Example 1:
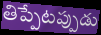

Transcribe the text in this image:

తిప్పేటప్పుడు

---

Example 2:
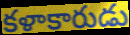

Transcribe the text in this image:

కళాకారుడు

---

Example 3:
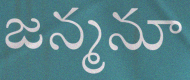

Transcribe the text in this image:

జన్మనూ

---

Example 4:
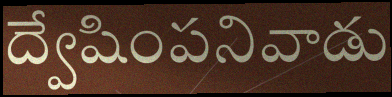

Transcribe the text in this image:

ద్వేషింపనివాడు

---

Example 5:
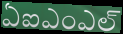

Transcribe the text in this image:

ఏఐఎంఎల్